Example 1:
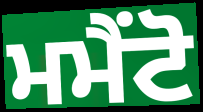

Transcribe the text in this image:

ਮਮੈਂਟੋ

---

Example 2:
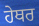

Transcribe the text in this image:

ਹੇਥਰ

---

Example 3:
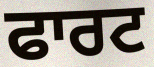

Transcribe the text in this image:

ਫਾਰਟ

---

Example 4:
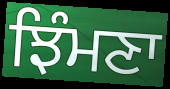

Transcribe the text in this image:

ਝਿੰਮਣਾ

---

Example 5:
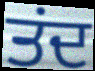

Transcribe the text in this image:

ਤਂਦ